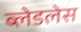
ब्लेडलेस